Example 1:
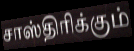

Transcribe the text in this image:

சாஸ்திரிக்கும்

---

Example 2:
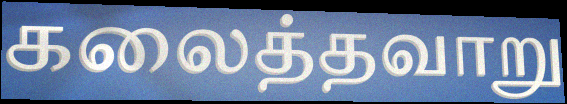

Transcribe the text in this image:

கலைத்தவாறு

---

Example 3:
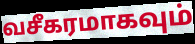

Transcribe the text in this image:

வசீகரமாகவும்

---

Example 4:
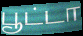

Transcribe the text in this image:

பூட்டா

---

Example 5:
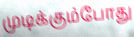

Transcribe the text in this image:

முடிக்கும்போது